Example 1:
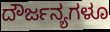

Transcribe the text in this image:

ದೌರ್ಜನ್ಯಗಳೂ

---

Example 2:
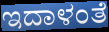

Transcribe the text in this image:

ಇದಾಳಂತೆ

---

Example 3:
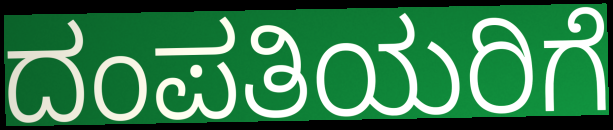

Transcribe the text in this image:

ದಂಪತಿಯರಿಗೆ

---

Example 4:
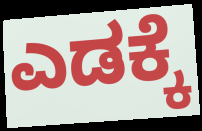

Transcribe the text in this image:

ಎಡಕ್ಕೆ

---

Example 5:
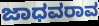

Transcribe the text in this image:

ಜಾಧವರಾವ